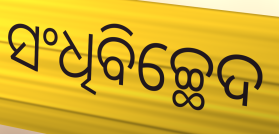
ସଂଧିବିଚ୍ଛେଦ